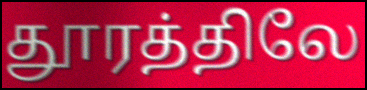
தூரத்திலே